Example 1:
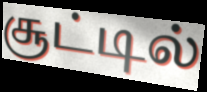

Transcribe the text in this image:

சூட்டில்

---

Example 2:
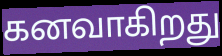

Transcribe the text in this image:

கனவாகிறது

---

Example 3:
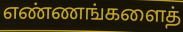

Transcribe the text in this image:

எண்ணங்களைத்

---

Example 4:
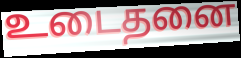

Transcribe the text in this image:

உடைதனை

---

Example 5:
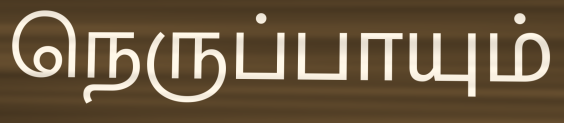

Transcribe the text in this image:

நெருப்பாயும்